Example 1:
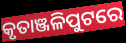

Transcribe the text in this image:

କୃତାଞ୍ଜଳିପୁଟରେ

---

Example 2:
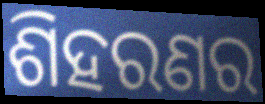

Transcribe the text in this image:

ଶିହରଣର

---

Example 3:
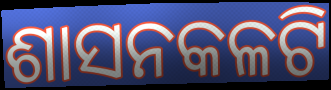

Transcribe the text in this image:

ଶାସନକଳଟି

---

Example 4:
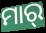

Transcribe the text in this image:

ମାର୍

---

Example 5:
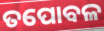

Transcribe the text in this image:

ତପୋବଳ